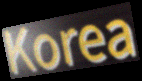
Korea